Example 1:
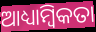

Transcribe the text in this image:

ଆଧ୍ୟାମ୍ବିକତା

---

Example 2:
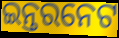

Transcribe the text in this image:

ଇନ୍ତରନେଟ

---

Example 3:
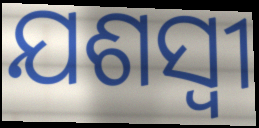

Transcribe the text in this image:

ଯଶସ୍ଵୀ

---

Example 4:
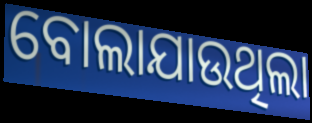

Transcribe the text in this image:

ବୋଲାଯାଉଥିଲା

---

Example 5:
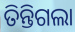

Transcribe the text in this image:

ତିନ୍ତିଗଲା